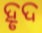
ହୃଦ